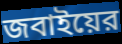
জবাইয়ের